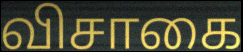
விசாகை